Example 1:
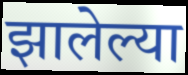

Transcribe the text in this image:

झालेल्या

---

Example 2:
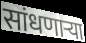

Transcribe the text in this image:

सांधणार्‍या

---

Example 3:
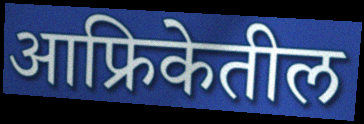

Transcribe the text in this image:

आफ्रिकेतील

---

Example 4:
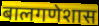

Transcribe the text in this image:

बालगणेशास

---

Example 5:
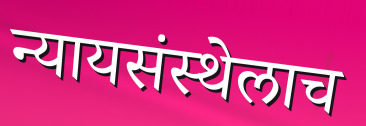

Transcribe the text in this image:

न्यायसंस्थेलाच